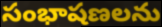
సంభాషణలను